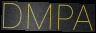
DMPA